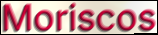
Moriscos